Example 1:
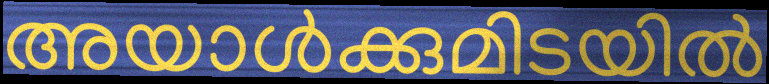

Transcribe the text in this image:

അയാൾക്കുമിടയിൽ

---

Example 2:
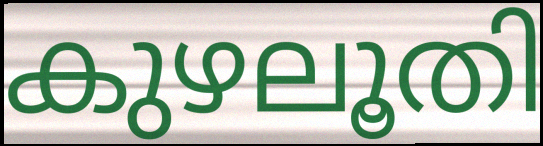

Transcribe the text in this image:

കുഴലൂതി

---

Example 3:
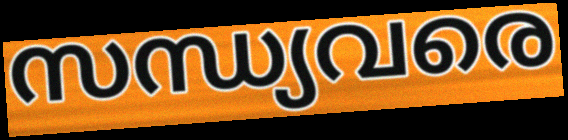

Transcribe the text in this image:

സന്ധ്യവരെ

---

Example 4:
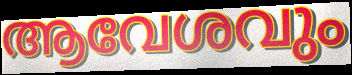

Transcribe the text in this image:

ആവേശവും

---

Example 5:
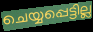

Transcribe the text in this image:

ചെയ്യപ്പെട്ടില്ല